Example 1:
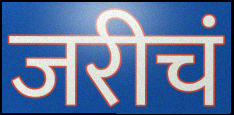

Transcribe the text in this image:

जरीचं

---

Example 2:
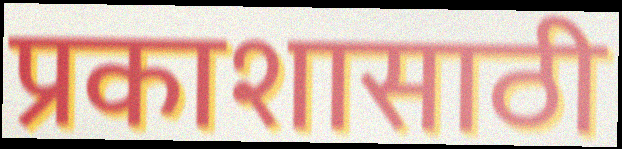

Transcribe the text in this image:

प्रकाशासाठी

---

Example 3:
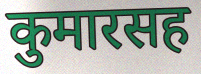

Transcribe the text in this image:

कुमारसह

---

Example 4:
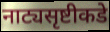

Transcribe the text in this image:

नाट्यसृष्टीकडे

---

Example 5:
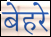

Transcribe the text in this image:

बेहरे